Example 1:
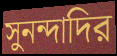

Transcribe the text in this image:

সুনন্দাদির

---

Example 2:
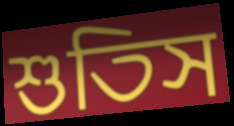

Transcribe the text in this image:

শুতিস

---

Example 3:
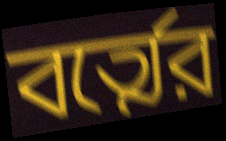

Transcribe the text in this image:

বর্ত্মের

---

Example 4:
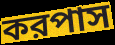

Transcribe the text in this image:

করপাস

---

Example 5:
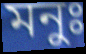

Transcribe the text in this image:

মনুঃ